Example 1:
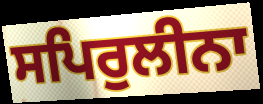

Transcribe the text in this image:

ਸਪਿਰੁਲੀਨਾ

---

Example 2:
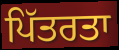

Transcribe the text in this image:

ਪਿੱਤਰਤਾ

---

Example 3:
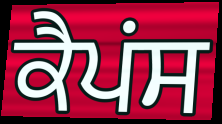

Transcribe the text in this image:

ਕੈਪਂਸ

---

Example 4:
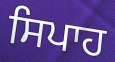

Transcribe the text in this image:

ਸਿਪਾਹ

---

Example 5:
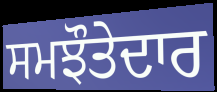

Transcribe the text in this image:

ਸਮਝੌਤੇਦਾਰ